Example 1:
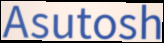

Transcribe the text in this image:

Asutosh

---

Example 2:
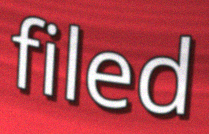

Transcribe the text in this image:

filed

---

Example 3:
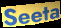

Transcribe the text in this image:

Seeta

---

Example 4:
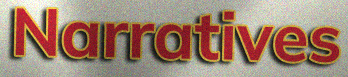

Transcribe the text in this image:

Narratives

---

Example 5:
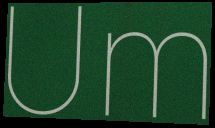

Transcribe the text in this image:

Um